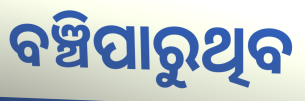
ବଞ୍ଚିପାରୁଥିବ